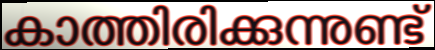
കാത്തിരിക്കുന്നുണ്ട്